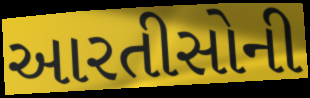
આરતીસોની